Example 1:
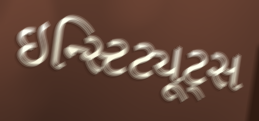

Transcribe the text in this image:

ઇન્સ્ટિટ્યૂટ્સ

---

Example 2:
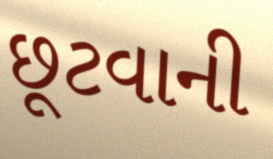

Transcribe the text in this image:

છૂટવાની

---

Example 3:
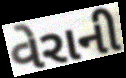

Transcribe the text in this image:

વેરાની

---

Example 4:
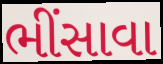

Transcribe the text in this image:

ભીંસાવા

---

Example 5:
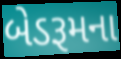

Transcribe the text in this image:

બેડરૂમના